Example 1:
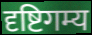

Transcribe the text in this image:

दृष्टिगम्य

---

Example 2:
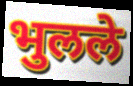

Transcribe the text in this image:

भुलले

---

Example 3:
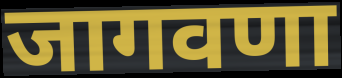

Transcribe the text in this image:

जागवणा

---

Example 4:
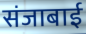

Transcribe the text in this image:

संजाबाई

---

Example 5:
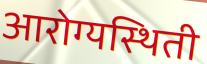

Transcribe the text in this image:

आरोग्यस्थिती